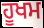
ਹੂਖਮ